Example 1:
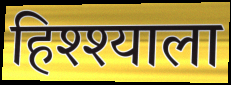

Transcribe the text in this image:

हिश्श्याला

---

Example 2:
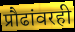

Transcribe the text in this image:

प्रौढांवरही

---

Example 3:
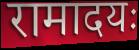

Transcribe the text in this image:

रामादयः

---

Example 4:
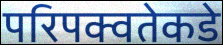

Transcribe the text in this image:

परिपक्वतेकडे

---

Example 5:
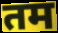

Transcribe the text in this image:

तम